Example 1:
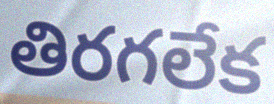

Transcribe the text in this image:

తిరగలేక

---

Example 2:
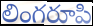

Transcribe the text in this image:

లింగరూపి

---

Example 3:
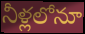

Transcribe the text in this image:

నీళ్లలోనూ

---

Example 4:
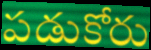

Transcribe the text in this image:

పడుకోరు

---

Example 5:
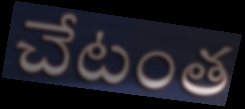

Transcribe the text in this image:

చేటంత